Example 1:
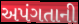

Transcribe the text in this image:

અપંગતાની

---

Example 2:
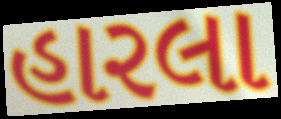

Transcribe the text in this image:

હારલા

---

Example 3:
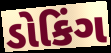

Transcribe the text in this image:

ડોકિંગ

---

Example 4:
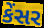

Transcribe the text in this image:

કેંસર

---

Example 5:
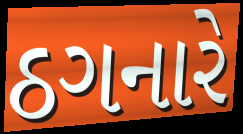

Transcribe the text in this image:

ઠગનારે